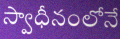
స్వాధీనంలోనే